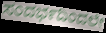
ಸಂದರ್ಭದಿಂದಲೇ